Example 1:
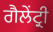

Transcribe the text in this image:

ਗੈਲੇਂਟ੍ਰੀ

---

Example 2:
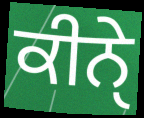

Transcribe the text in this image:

ਕੀਨੇੑ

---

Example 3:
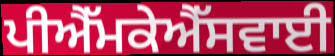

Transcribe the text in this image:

ਪੀਐੱਮਕੇਐੱਸਵਾਈ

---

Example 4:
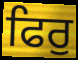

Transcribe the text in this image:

ਫਿਰੁ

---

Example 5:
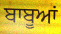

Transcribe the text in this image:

ਬਾਬੂਆਂ